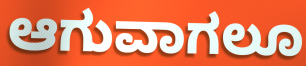
ಆಗುವಾಗಲೂ